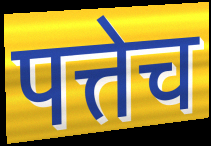
पत्तेच